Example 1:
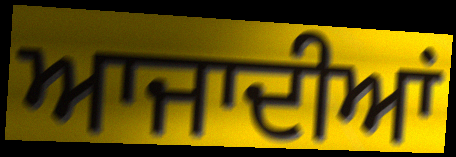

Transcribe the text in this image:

ਆਜਾਦੀਆਂ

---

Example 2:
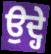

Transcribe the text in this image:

ਉਦ੍ਹੇ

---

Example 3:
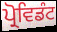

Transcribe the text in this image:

ਪ੍ਰੋਵਿਡੰਟ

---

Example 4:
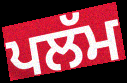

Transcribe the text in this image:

ਪਲੱਮ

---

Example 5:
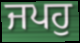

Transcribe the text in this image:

ਜਪਹੁ